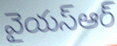
వైయస్ఆర్